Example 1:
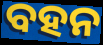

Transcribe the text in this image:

ବହନ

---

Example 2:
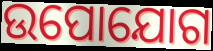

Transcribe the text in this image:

ଉପୋଯୋଗ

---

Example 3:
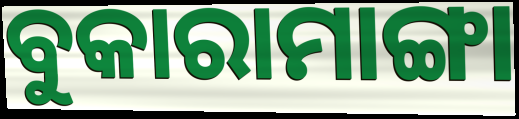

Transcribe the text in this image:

ବୁକାରାମାଙ୍ଗା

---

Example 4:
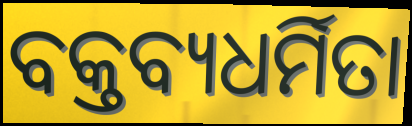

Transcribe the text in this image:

ବକ୍ତବ୍ୟଧର୍ମିତା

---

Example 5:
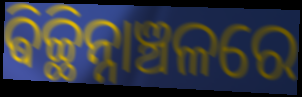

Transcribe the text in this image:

ଵିଚ୍ଛିନ୍ନାଞ୍ଚଳରେ